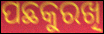
ପଛକୁରଖି